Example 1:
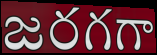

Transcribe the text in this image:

జరగగా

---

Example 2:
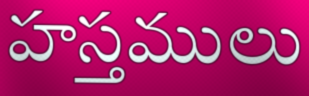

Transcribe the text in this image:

హస్తములు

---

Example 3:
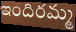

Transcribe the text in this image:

ఇందిరమ్మ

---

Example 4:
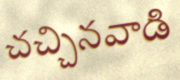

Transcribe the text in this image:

చచ్చినవాడి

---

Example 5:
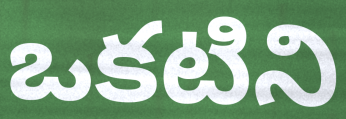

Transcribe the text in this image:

ఒకటిని